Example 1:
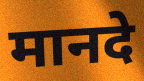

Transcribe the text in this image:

मानदे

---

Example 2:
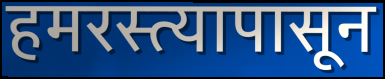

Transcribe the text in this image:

हमरस्त्यापासून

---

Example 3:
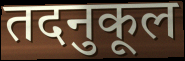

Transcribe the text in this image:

तदनुकूल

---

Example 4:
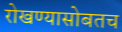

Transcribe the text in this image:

रोखण्यासोबतच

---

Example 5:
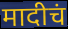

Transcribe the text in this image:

मादीचं